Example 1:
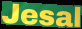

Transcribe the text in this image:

Jesal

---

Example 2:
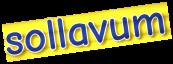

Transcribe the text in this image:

sollavum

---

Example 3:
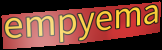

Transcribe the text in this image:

empyema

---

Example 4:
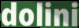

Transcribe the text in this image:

dolini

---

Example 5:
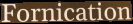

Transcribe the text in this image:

Fornication